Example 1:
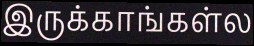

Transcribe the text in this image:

இருக்காங்கள்ல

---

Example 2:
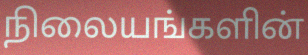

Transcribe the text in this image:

நிலையங்களின்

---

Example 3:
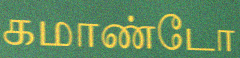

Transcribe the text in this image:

கமாண்டோ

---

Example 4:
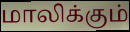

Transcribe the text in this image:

மாலிக்கும்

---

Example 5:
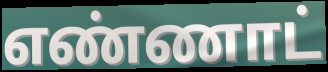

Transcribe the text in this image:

எண்ணாட்